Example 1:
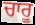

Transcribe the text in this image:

ਚਾਰੂ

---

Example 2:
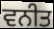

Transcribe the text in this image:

ਵਨੀਤ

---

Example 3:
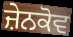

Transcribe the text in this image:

ਜ਼ੇਨਕੋਵ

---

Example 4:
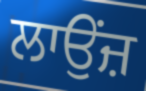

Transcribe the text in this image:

ਲਾਉਂਜ਼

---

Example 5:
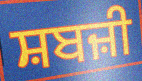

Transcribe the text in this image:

ਸ਼ਬਜ਼ੀ